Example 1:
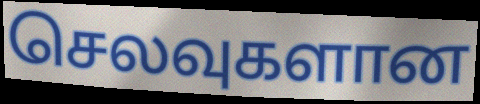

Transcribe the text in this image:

செலவுகளான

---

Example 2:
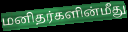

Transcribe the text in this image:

மனிதர்களின்மீது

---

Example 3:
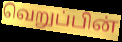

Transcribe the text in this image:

வெறுப்பின்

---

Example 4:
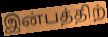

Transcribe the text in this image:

இன்பத்திற்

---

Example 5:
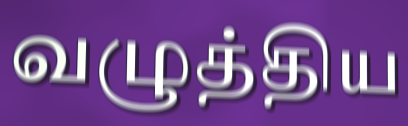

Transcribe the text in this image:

வழுத்திய